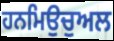
ਹਨਮਿਉਚੁਅਲ